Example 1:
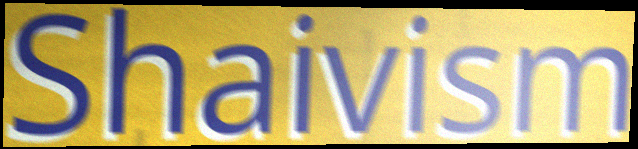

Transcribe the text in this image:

Shaivism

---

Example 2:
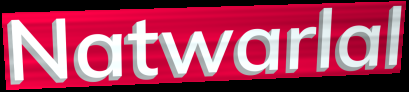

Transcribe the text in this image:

Natwarlal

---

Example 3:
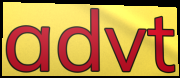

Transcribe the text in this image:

advt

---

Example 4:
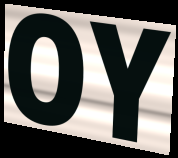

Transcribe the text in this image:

OY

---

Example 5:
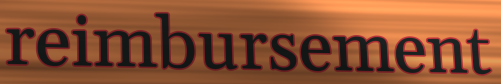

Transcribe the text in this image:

reimbursement